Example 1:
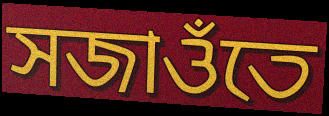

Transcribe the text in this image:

সজাওঁতে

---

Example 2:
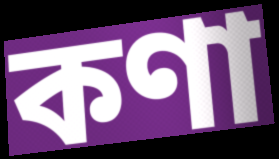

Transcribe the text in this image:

কণা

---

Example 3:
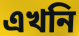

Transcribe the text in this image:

এখনি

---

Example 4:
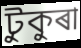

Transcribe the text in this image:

টুকুৰা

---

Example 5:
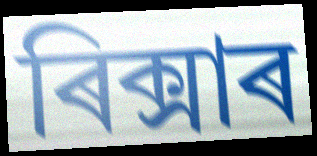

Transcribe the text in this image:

ৰিক্সাৰ